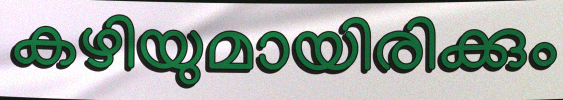
കഴിയുമായിരിക്കും